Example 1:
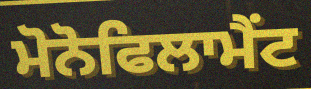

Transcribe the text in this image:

ਮੋਨੋਫਿਲਾਮੈਂਟ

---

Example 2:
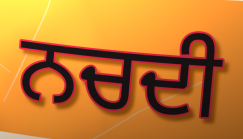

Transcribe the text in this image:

ਨਚਦੀ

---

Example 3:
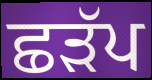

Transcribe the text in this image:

ਛੜੱਪ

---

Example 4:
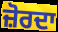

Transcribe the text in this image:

ਜ਼ੋਰਦਾ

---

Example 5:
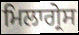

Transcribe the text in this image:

ਮਿਲਾਗ੍ਰੇਸ